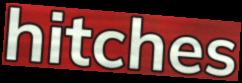
hitches